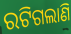
ରଟିଗଲାଣି